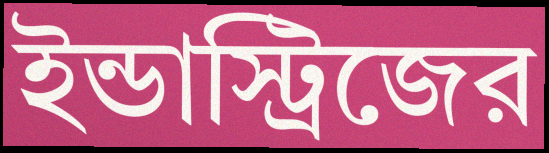
ইন্ডাস্ট্রিজের